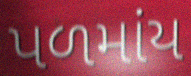
પળમાંય